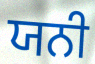
ਯਨੀ